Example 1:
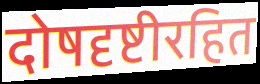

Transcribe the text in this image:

दोषदृष्टीरहित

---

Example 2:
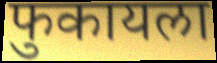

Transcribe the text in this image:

फुकायला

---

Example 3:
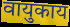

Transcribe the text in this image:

वायुकाय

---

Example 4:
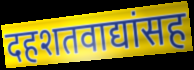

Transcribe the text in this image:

दहशतवाद्यांसह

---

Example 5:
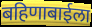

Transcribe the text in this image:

बहिणाबाईला